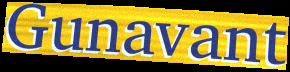
Gunavant